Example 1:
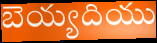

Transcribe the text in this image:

బెయ్యదియు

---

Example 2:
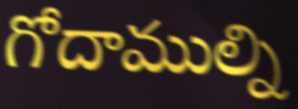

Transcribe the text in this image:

గోదాముల్ని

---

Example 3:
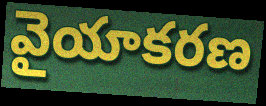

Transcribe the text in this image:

వైయాకరణ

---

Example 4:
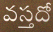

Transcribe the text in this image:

వస్తదో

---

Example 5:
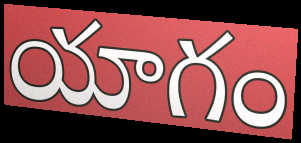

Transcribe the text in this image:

యాగం